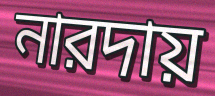
নারদায়